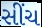
સીંચ